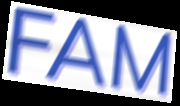
FAM